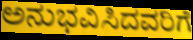
ಅನುಭವಿಸಿದವರಿಗೆ